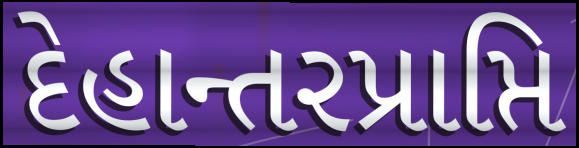
દેહાન્તરપ્રાપ્તિ